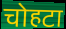
चोहटा